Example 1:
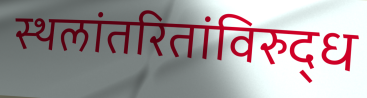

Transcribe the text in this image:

स्थलांतरितांविरुद्ध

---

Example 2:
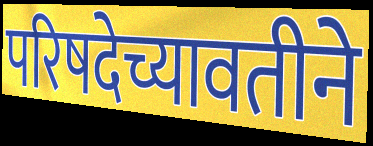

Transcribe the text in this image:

परिषदेच्यावतीने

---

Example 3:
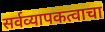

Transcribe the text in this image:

सर्वव्यापकत्वाचा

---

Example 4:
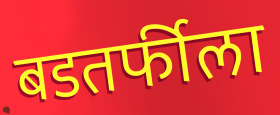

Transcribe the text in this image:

बडतर्फीला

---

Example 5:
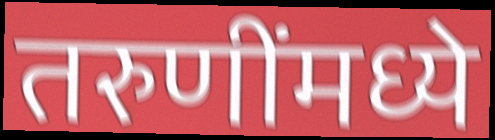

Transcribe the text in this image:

तरुणींमध्ये